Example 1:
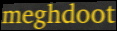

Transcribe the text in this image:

meghdoot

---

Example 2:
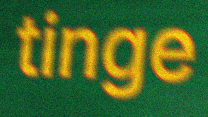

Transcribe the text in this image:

tinge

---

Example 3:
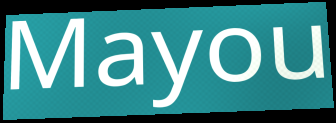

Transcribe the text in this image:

Mayou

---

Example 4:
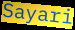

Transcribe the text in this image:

Sayari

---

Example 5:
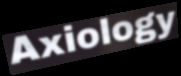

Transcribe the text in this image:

Axiology